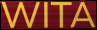
WITA